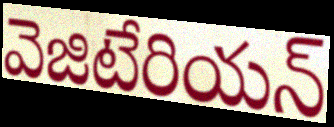
వెజిటేరియన్